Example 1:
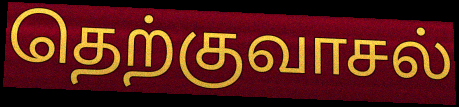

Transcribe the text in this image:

தெற்குவாசல்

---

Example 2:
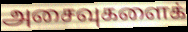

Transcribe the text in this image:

அசைவுகளைக்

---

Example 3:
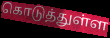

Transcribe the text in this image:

கொடுத்துள்ள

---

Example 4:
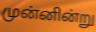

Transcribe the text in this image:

முன்னின்று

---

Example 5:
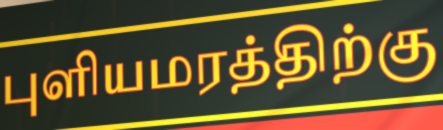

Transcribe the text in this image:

புளியமரத்திற்கு